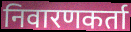
निवारणकर्ता